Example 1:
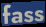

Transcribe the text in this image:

fass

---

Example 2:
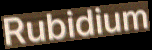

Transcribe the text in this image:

Rubidium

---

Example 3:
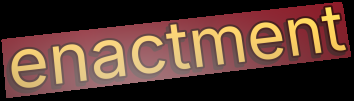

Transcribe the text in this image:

enactment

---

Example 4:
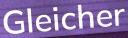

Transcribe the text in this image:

Gleicher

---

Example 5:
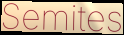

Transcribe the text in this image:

Semites